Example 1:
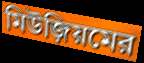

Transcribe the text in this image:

মিউজ়িয়মের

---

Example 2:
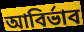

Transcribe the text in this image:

আবির্ভাব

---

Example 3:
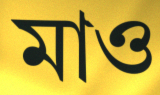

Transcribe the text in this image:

মাও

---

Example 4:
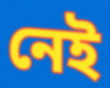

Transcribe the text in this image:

নেই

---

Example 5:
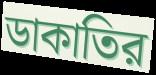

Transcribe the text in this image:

ডাকাতির